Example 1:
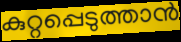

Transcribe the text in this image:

കുറ്റപ്പെടുത്താൻ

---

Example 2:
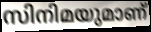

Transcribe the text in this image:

സിനിമയുമാണ്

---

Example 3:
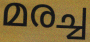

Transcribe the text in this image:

മരച്ച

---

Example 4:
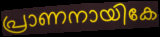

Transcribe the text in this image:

പ്രാണനായികേ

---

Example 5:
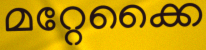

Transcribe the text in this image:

മറ്റേക്കൈ